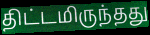
திட்டமிருந்தது